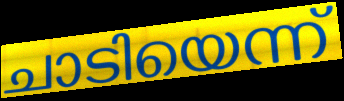
ചാടിയെന്ന്